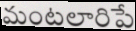
మంటలారిపే